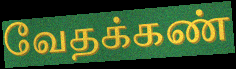
வேதக்கண்